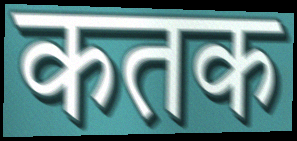
कतक